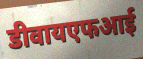
डीवायएफआई